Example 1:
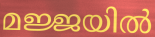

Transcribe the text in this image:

മജ്ജയിൽ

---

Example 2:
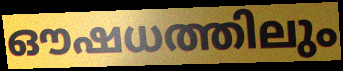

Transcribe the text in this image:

ഔഷധത്തിലും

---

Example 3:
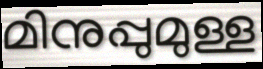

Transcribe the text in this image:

മിനുപ്പുമുള്ള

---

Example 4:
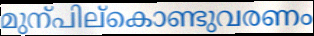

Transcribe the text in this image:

മുന്പില്കൊണ്ടുവരണം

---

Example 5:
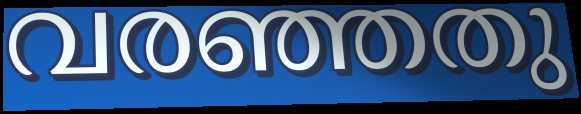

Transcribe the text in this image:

വരഞ്ഞതു